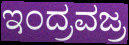
ಇಂದ್ರವಜ್ರ